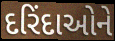
દરિંદાઓને